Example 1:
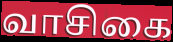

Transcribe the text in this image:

வாசிகை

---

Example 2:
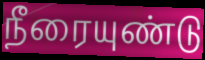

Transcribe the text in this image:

நீரையுண்டு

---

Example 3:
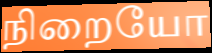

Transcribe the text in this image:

நிறையோ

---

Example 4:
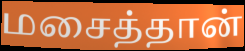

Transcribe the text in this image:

மசைத்தான்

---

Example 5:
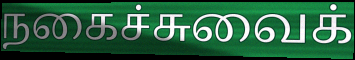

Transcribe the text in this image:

நகைச்சுவைக்